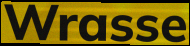
Wrasse